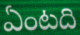
ఏంటది